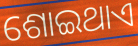
ଶୋଇଥାଏ